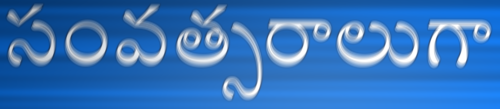
సంవత్సరాలుగా